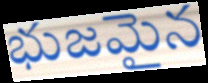
భుజమైన